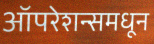
ऑपरेशन्समधून